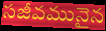
సజీవమునైన